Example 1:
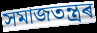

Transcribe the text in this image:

সমাজতন্ত্ৰৰ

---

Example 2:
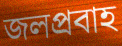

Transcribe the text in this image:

জলপ্ৰবাহ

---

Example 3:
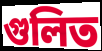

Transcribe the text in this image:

গুলিত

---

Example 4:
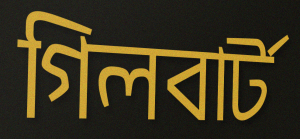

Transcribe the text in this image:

গিলবাৰ্ট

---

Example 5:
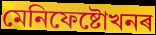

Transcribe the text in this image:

মেনিফেষ্টোখনৰ